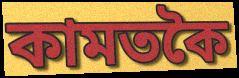
কামতকৈ